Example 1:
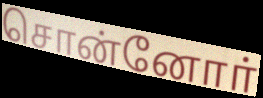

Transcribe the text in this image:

சொன்னோர்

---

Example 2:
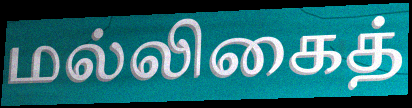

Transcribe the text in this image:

மல்லிகைத்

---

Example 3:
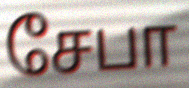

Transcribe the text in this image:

சேபா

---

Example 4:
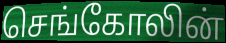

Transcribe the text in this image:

செங்கோலின்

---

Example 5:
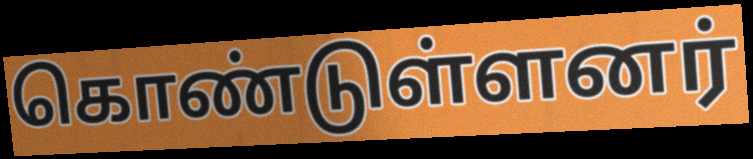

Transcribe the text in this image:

கொண்டுள்ளனர்